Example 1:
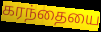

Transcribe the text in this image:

கரந்தையை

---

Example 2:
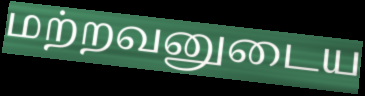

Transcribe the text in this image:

மற்றவனுடைய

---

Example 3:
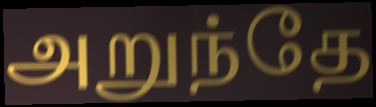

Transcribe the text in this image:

அறுந்தே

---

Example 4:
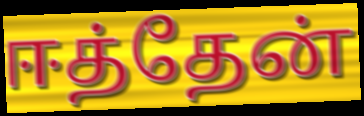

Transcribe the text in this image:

ஈத்தேன்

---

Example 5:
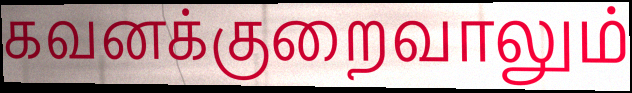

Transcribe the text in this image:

கவனக்குறைவாலும்